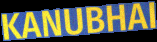
KANUBHAI